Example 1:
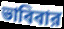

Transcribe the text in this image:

ভাবিবার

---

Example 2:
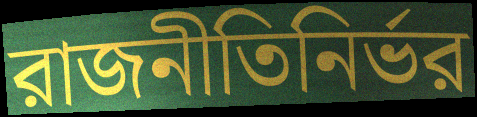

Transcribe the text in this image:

রাজনীতিনির্ভর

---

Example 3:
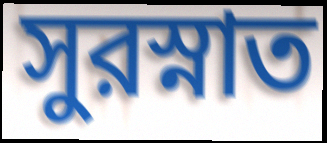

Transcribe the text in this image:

সুরস্নাত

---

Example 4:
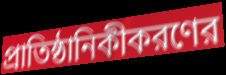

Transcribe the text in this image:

প্রাতিষ্ঠানিকীকরণের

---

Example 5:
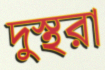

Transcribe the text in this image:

দুস্থরা